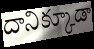
దానిక్కూడా